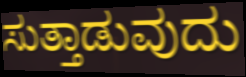
ಸುತ್ತಾಡುವುದು